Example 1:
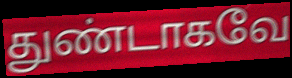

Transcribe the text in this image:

துண்டாகவே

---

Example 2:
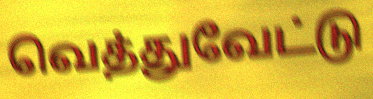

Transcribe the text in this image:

வெத்துவேட்டு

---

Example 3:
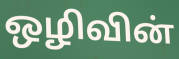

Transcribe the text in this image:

ஒழிவின்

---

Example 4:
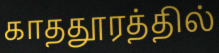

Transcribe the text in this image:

காததூரத்தில்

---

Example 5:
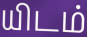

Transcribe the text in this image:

யிடம்